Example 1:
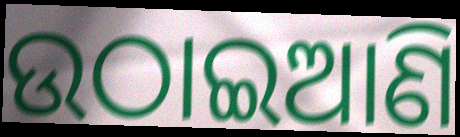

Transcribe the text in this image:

ଉଠାଇଆଣି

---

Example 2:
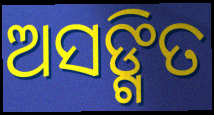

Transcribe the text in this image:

ଅସଙ୍ଗିତ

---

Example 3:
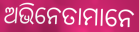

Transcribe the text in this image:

ଅଭିନେତାମାନେ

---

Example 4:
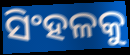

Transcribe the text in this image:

ସିଂହଳକୁ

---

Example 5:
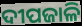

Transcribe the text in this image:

ଦୀପଜାଳି